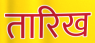
तारिख